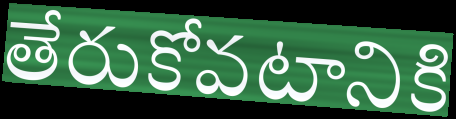
తేరుకోవటానికి